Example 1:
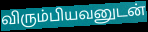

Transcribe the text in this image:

விரும்பியவனுடன்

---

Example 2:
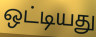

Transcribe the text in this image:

ஒட்டியது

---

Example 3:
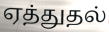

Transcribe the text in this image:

ஏத்துதல்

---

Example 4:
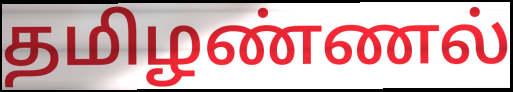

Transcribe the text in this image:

தமிழண்ணல்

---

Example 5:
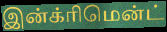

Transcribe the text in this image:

இன்க்ரிமென்ட்